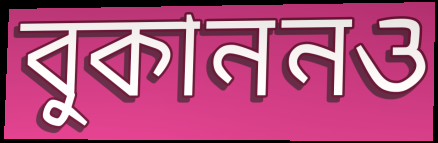
বুকাননও